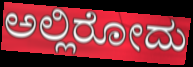
ಅಲ್ಲಿರೋದು